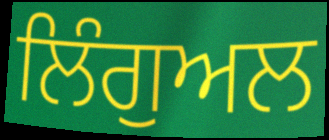
ਲਿੰਗੁਅਲ